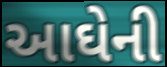
આઘેની